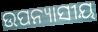
ଉପନ୍ୟାସୀୟ